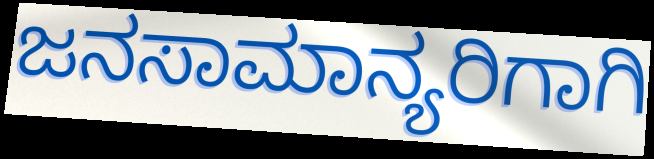
ಜನಸಾಮಾನ್ಯರಿಗಾಗಿ